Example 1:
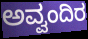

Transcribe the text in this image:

ಅವ್ವಂದಿರ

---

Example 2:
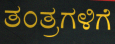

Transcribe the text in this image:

ತಂತ್ರಗಳಿಗೆ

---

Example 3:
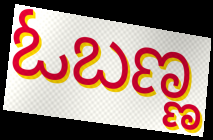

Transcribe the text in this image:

ಓಬಣ್ಣ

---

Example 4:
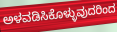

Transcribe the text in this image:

ಅಳವಡಿಸಿಕೊಳ್ಳುವುದರಿಂದ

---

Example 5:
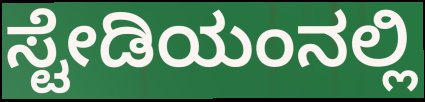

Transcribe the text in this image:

ಸ್ಟೇಡಿಯಂನಲ್ಲಿ